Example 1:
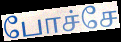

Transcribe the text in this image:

போச்சே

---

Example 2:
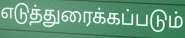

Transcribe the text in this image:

எடுத்துரைக்கப்படும்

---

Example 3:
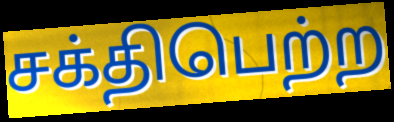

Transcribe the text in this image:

சக்திபெற்ற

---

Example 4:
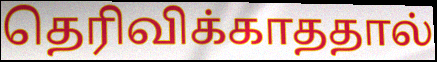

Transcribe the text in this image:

தெரிவிக்காததால்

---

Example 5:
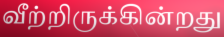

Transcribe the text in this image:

வீற்றிருக்கின்றது